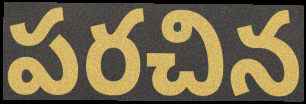
పరచిన